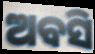
ଅବସି